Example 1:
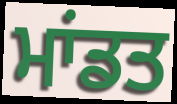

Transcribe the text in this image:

ਮਾਂਡਤ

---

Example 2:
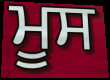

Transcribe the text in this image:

ਮੂਸ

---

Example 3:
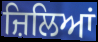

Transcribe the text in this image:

ਜ਼ਿਲਿਆਂ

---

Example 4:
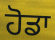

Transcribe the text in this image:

ਹੋਡਾ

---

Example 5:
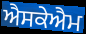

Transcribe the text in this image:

ਐਸਕੇਐਮ